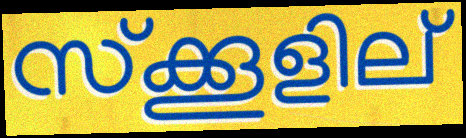
സ്ക്കൂളില്